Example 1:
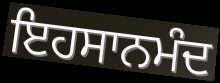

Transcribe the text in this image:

ਇਹਸਾਨਮੰਦ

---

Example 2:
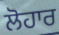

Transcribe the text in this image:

ਲੋਹਾਰ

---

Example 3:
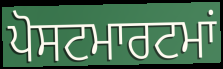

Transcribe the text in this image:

ਪੋਸਟਮਾਰਟਮਾਂ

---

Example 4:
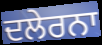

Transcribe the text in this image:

ਦਲੇਰਨਾ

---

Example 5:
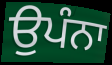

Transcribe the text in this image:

ਉਪੰਨਾ